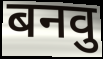
बनवु